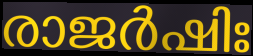
രാജർഷിഃ